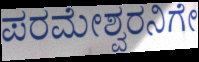
ಪರಮೇಶ್ವರನಿಗೇ